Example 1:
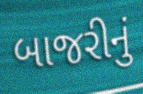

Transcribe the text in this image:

બાજરીનું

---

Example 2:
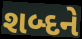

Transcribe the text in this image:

શબ્દને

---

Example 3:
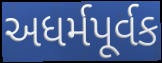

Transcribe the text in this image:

અધર્મપૂર્વક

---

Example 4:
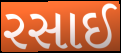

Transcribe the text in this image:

રસાઈ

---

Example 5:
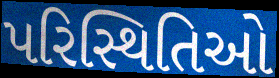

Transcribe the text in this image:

પરિસ્થિતિઓ